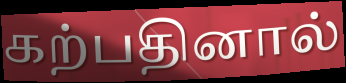
கற்பதினால்